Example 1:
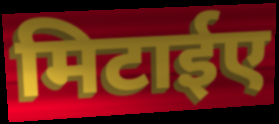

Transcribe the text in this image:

मिटाईए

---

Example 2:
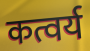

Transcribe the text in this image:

कत्वर्य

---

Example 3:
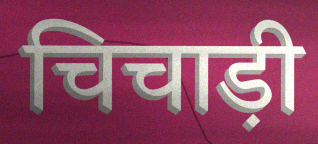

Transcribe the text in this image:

चिचाड़ी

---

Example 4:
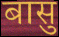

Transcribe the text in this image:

बासु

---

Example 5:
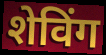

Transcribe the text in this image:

शेविंग